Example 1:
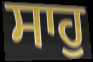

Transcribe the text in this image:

ਸਾਹੁ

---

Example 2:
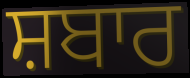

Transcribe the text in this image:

ਸ਼ਬਾਰ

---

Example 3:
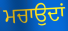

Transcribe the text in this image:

ਮਚਾਉਦਾਂ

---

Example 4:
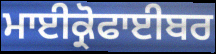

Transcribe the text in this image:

ਮਾਈਕ੍ਰੋਫਾਈਬਰ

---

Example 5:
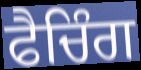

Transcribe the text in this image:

ਫੈਚਿੰਗ